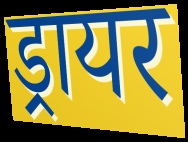
ड्रायर